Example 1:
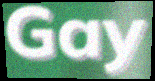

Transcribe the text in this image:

Gay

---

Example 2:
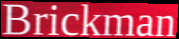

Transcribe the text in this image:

Brickman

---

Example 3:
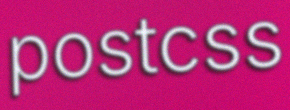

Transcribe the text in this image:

postcss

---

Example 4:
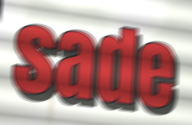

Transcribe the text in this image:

sade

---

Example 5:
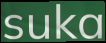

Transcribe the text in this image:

suka